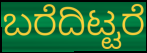
ಬರೆದಿಟ್ಟರೆ